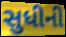
સુધીની